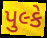
પુલ્કે